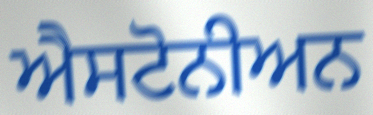
ਐਸਟੋਨੀਅਨ